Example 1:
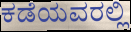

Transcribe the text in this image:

ಕಡೆಯವರಲ್ಲಿ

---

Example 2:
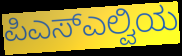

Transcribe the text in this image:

ಪಿಎಸ್ಎಲ್ವಿಯ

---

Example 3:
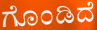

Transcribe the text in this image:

ಗೊಂಡಿದೆ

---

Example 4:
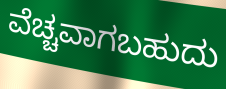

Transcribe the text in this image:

ವೆಚ್ಚವಾಗಬಹುದು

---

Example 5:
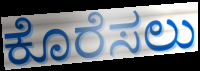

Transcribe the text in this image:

ಕೊರೆಸಲು